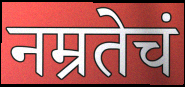
नम्रतेचं